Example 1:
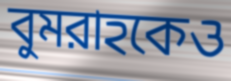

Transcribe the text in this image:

বুমরাহকেও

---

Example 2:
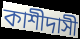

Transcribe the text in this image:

কাশীদাসী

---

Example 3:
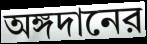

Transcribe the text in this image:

অঙ্গদানের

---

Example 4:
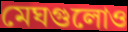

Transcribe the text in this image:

মেঘগুলোও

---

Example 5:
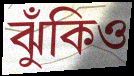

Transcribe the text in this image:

ঝুঁকিও